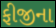
ફીજીના